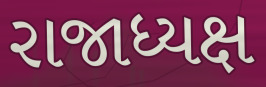
રાજાધ્યક્ષ